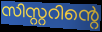
സിസ്റ്ററിന്റെ